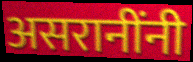
असरानींनी